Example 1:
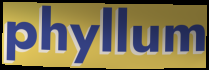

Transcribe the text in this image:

phyllum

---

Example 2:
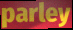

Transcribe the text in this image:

parley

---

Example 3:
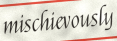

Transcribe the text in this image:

mischievously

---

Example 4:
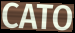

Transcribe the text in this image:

CATO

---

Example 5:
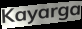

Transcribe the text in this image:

Kayarga